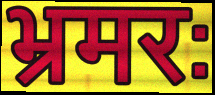
भ्रमरः